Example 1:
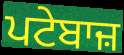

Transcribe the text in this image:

ਪਟੇਬਾਜ਼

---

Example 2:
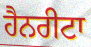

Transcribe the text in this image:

ਹੈਨਰੀਟਾ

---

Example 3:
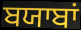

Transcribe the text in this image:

ਬਯਾਬਾਂ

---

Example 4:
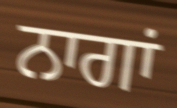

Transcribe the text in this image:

ਨਾਗਾਂ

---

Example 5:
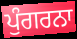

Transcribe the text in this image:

ਪੁੰਗਰਨਾ